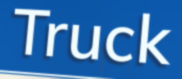
Truck